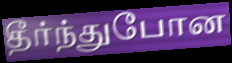
தீர்ந்துபோன